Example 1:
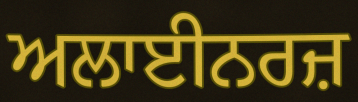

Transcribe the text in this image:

ਅਲਾਈਨਰਜ਼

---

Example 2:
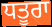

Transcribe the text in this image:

ਧਤੂਰਾ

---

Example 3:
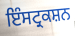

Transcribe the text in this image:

ਇੰਸਟ੍ਰਕਸ਼ਨ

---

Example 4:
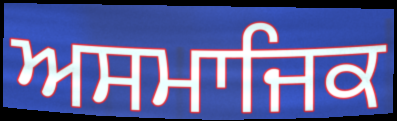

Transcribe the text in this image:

ਅਸਮਾਜਿਕ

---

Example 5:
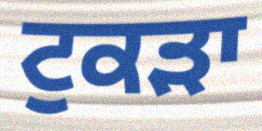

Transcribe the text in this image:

ਟੁਕੜਾ